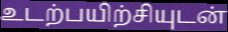
உடற்பயிற்சியுடன்